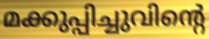
മക്കുപ്പിച്ചുവിന്റെ